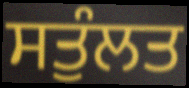
ਸਤੁੰਲਤ